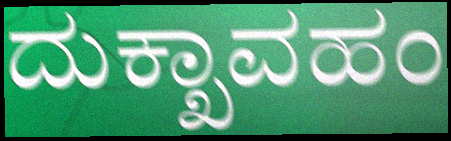
ದುಕ್ಖಾವಹಂ